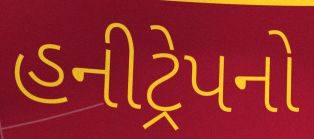
હનીટ્રેપનો